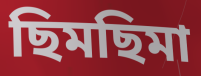
ছিমছিমা